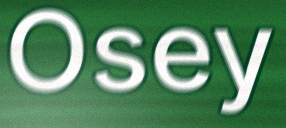
Osey